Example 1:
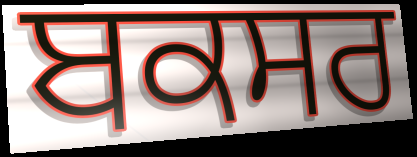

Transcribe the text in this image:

ਬਕਸਰ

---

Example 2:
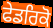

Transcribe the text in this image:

ਫੇਡਰਿਕੋ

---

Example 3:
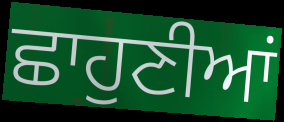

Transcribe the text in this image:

ਛਾਹੁਣੀਆਂ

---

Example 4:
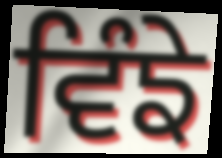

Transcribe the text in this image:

ਵਿੰਙੇ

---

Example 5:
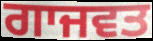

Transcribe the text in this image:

ਗਾਜਵਤ